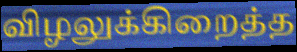
விழலுக்கிறைத்த